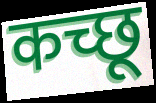
कच्छू